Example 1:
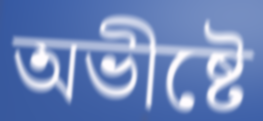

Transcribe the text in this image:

অভীষ্টে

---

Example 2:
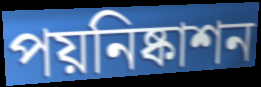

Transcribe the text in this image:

পয়নিষ্কাশন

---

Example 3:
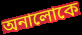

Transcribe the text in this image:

অনালোকে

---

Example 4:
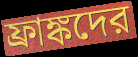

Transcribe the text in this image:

ফ্রাঙ্কদের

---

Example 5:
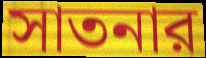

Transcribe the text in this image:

সাতনার